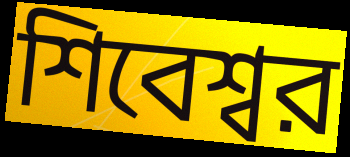
শিবেশ্বর